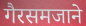
गैरसमजाने